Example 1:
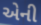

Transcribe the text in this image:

એની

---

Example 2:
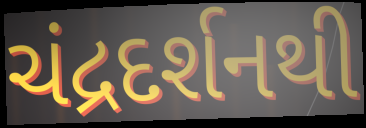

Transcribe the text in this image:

ચંદ્રદર્શનથી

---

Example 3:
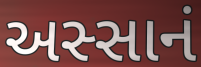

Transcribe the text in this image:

અસ્સાનં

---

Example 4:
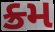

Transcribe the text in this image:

ક્ર્મ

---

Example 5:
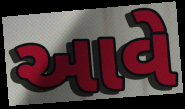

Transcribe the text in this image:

આવે